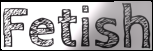
Fetish